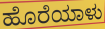
ಹೊರೆಯಾಳು